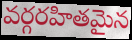
వర్గరహితమైన